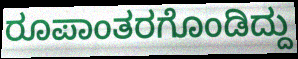
ರೂಪಾಂತರಗೊಂಡಿದ್ದು